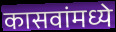
कासवांमध्ये